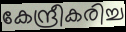
കേന്ദ്രീകരിച്ച